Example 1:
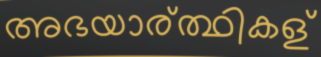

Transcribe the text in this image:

അഭയാര്ത്ഥികള്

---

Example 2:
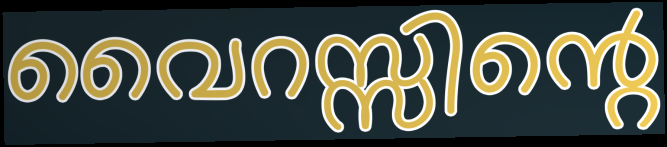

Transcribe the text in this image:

വൈറസ്സിന്റെ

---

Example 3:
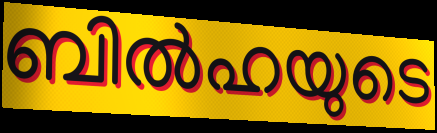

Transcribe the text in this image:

ബിൽഹയുടെ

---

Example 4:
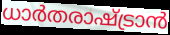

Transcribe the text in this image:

ധാർതരാഷ്ട്രാൻ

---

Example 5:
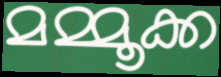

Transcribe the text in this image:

മമ്മൂക്ക